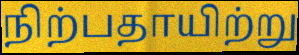
நிற்பதாயிற்று